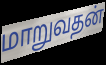
மாறுவதன்